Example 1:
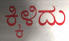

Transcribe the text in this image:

ಕ್ಕಿಳಿದು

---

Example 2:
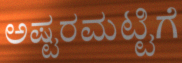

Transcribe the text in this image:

ಅಷ್ಟರಮಟ್ಟಿಗೆ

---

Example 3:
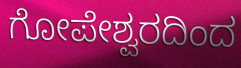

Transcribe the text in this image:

ಗೋಪೇಶ್ವರದಿಂದ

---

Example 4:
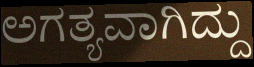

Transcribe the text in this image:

ಅಗತ್ಯವಾಗಿದ್ದು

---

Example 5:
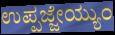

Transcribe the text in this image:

ಉಪ್ಪಜ್ಜೇಯ್ಯುಂ